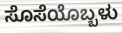
ಸೊಸೆಯೊಬ್ಬಳು